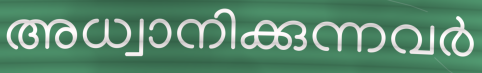
അധ്വാനിക്കുന്നവർ